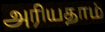
அரியதாம்